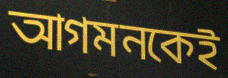
আগমনকেই